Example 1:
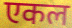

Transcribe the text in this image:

एकल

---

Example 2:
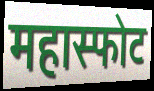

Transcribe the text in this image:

महास्फोट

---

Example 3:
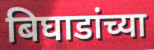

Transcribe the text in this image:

बिघाडांच्या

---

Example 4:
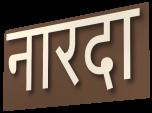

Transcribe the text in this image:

नारदा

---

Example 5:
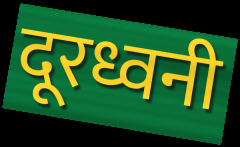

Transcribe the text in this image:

दूरध्वनी